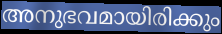
അനുഭവമായിരിക്കും